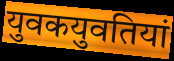
युवकयुवतियां